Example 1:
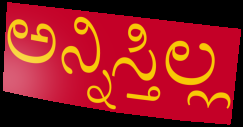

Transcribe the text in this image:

ಅನ್ನಿಸ್ತಿಲ್ಲ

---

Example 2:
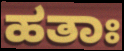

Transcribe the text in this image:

ಹತಾಃ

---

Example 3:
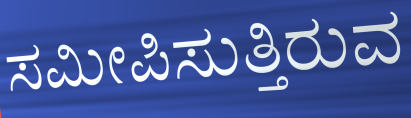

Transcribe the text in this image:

ಸಮೀಪಿಸುತ್ತಿರುವ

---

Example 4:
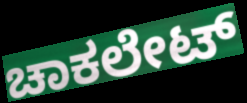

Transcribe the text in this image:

ಚಾಕಲೇಟ್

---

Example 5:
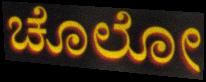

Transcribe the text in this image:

ಚೊಲೋ